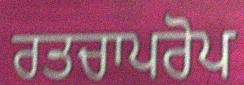
ਰਤਚਾਪਰੋਪ